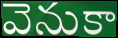
వెనుకా